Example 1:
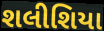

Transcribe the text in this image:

શલીશિયા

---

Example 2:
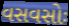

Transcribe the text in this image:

વસવસોઃ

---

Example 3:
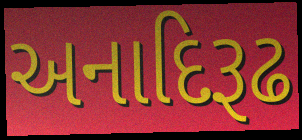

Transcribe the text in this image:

અનાદિરૂઢ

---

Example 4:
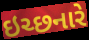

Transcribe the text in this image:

ઇચ્છનારે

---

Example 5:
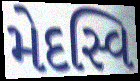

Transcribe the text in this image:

મેદસ્વિ